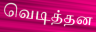
வெடித்தன